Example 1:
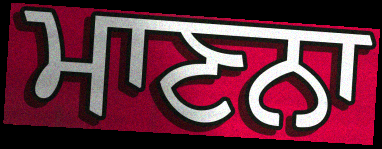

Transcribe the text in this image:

ਮਾਣਨਾ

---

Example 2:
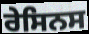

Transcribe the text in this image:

ਰੇਸਿਨਸ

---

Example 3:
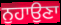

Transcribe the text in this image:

ਨੁਹਾਉਣਾ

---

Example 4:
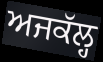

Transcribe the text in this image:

ਅਜਕੱਲ੍ਹ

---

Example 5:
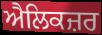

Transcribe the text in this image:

ਐਲਿਕਜ਼ਰ